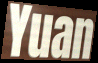
Yuan